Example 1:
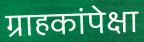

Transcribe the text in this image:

ग्राहकांपेक्षा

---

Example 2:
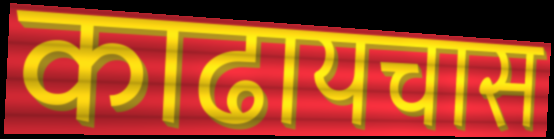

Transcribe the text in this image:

काढायचास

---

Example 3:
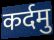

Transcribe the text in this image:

कर्दमु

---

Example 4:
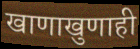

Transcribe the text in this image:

खाणाखुणाही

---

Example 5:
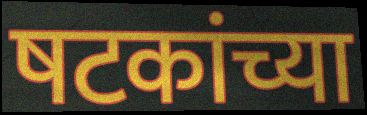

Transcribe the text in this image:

षटकांच्या